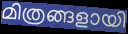
മിത്രങ്ങളായി